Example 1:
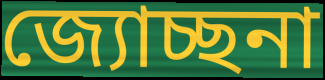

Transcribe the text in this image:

জ্যোচ্ছনা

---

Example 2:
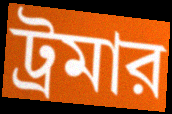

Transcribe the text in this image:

ট্রমার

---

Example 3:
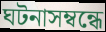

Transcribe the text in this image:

ঘটনাসম্বন্ধে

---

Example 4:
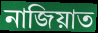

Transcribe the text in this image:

নাজিয়াত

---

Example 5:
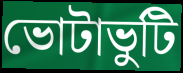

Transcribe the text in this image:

ভোটাভুটি